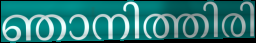
ഞാനിത്തിരി